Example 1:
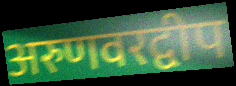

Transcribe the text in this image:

अरुणवरद्वीप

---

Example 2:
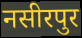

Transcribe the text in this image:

नसीरपुर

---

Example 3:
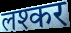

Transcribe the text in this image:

लश्‍कर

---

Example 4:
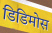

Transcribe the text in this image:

डिडिमोस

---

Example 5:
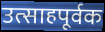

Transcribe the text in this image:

उत्‍साहपूर्वक